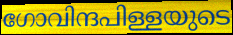
ഗോവിന്ദപിള്ളയുടെ